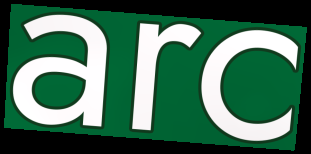
arc